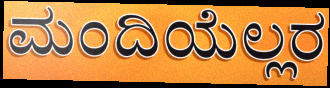
ಮಂದಿಯೆಲ್ಲರ